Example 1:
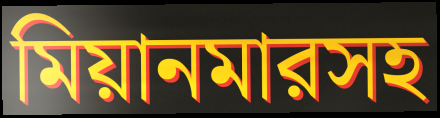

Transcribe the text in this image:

মিয়ানমারসহ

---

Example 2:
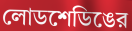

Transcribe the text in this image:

লোডশেডিঙের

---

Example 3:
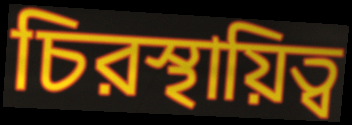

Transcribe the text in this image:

চিরস্থায়িত্ব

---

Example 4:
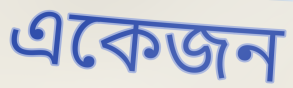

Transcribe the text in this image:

একেজন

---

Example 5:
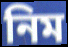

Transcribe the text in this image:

নিম